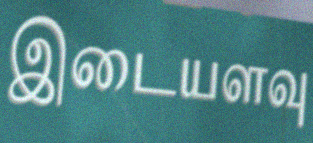
இடையளவு